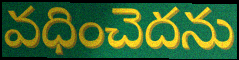
వధించెదను